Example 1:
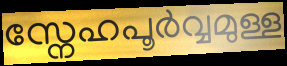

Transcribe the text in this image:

സ്നേഹപൂർവ്വമുള്ള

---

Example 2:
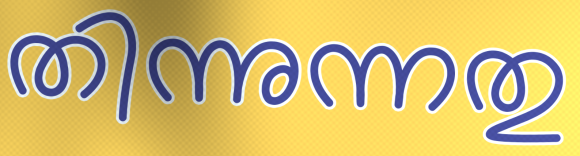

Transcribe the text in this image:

തിന്നുന്നതു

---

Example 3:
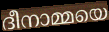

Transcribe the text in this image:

ദീനാമ്മയെ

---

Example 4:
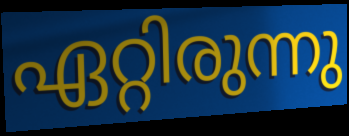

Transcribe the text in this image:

ഏറ്റിരുന്നു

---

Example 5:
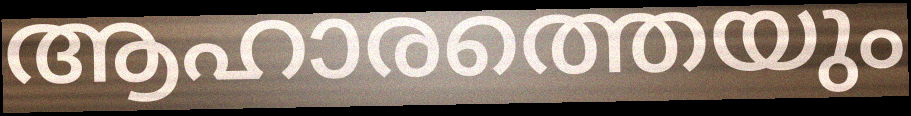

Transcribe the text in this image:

ആഹാരത്തെയും